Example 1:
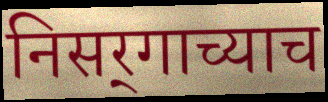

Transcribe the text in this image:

निसर्गाच्याच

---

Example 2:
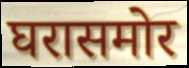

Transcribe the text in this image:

घरासमोर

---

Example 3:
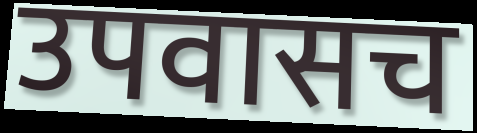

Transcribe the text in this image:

उपवासच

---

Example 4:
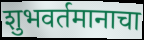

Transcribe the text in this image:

शुभवर्तमानाचा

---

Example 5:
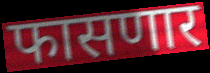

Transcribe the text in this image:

फासणार